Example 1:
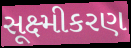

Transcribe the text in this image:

સૂક્ષ્મીકરણ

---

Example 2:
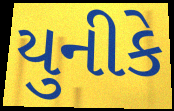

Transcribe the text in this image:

યુનીકે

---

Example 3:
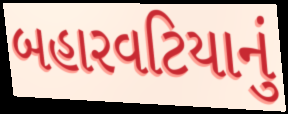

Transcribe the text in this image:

બહારવટિયાનું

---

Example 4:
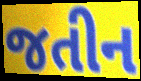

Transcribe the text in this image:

જતીન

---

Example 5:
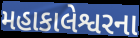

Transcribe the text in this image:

મહાકાલેશ્વરના